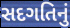
સદગતિનું